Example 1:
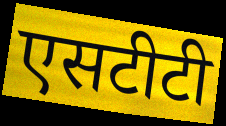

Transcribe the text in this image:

एसटीटी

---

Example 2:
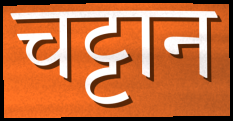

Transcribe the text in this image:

चट्टान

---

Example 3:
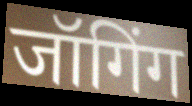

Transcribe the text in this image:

जॉगिंग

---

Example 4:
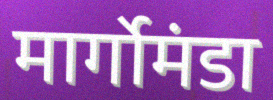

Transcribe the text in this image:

मार्गोमंडा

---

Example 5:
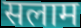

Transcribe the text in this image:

सलाम